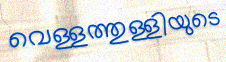
വെള്ളത്തുള്ളിയുടെ